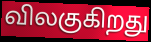
விலகுகிறது